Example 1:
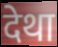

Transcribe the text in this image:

देथा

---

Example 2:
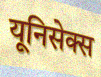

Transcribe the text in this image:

यूनिसेक्स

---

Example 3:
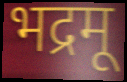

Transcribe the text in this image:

भद्रमू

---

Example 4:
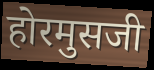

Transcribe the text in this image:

होरमुसजी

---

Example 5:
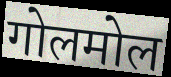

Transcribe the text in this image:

गोलमोल